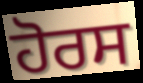
ਹੋਰਸ